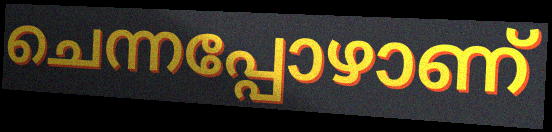
ചെന്നപ്പോഴാണ്